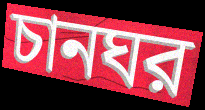
চানঘর